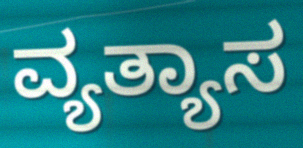
ವ್ಯತ್ಯಾಸ